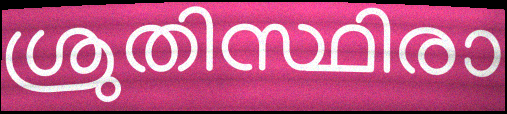
ശ്രുതിസ്ഥിരാ